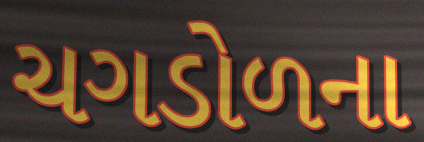
ચગડોળના